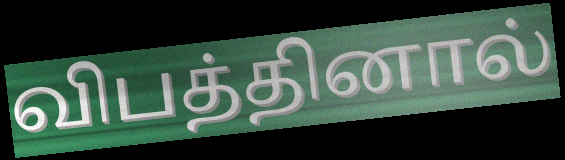
விபத்தினால்